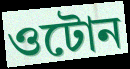
ওটোন